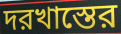
দরখাস্তের